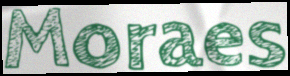
Moraes